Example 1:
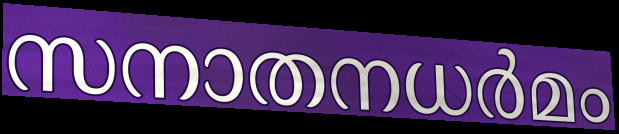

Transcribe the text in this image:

സനാതനധർമം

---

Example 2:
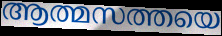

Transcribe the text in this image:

ആത്മസത്തയെ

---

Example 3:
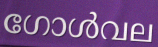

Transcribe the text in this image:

ഗോൾവല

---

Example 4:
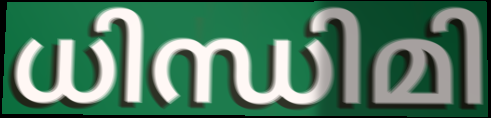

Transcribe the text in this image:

ധിന്ധിമി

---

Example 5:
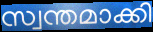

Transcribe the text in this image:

സ്വന്തമാക്കി